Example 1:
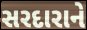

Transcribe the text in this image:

સરદારાને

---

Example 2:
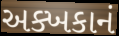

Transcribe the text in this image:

અક્ખકાનં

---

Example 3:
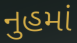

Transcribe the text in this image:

નુહમાં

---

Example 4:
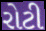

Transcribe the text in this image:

રોટી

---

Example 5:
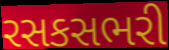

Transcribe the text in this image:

રસકસભરી